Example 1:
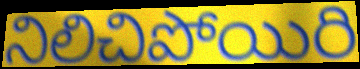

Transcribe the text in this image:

నిలిచిపోయిరి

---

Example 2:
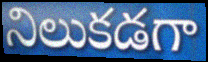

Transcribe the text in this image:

నిలుకడగా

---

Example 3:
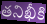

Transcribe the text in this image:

తనిఖీకి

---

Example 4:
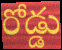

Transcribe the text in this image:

రోడ్డు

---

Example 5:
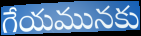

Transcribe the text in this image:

గేయమునకు